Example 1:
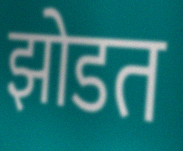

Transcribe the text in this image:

झोडत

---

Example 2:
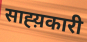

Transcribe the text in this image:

साह्य़कारी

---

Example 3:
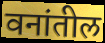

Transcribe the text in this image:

वनांतील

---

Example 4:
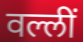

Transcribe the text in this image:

वल्लीं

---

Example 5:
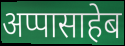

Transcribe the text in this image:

अप्पासाहेब